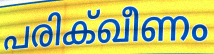
പരിക്ഖീണം